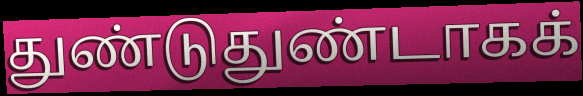
துண்டுதுண்டாகக்